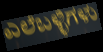
ಎಲೆಬಳ್ಳಿಗಳು